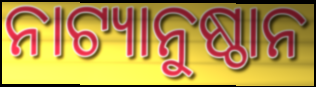
ନାଟ୍ୟାନୁଷ୍ଠାନ